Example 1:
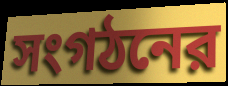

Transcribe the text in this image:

সংগঠনের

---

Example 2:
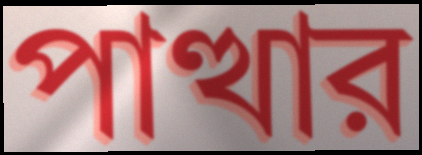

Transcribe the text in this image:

পাত্থার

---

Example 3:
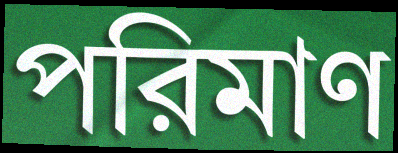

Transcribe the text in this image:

পরিমাণ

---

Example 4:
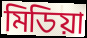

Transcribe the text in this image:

মিডিয়া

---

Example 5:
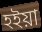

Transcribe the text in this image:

হইয়া